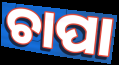
ଚାପା